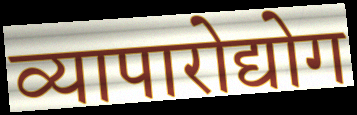
व्यापारोद्योग